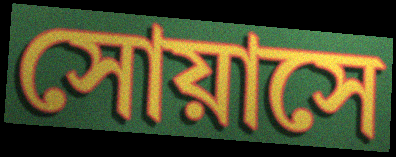
সোয়াসে